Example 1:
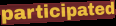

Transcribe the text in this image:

participated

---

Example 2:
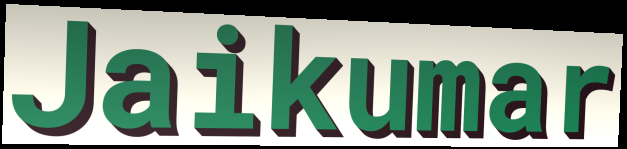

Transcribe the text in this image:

Jaikumar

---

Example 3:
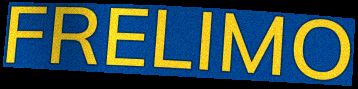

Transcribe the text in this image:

FRELIMO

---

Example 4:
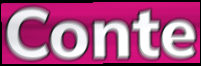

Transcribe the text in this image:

Conte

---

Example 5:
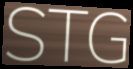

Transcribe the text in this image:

STG